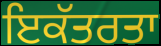
ਇਕੱਤਰਤਾ